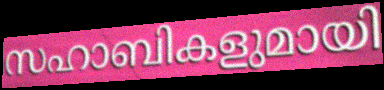
സഹാബികളുമായി